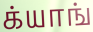
க்யாங்